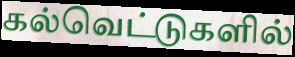
கல்வெட்டுகளில்